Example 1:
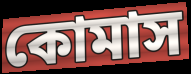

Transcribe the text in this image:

কোমাস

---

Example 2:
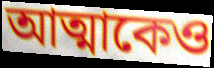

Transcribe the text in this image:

আত্মাকেও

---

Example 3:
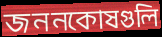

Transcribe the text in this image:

জননকোষগুলি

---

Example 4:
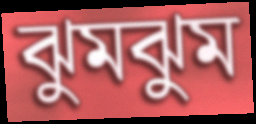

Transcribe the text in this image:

ঝুমঝুম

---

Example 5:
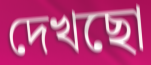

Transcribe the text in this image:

দেখছো